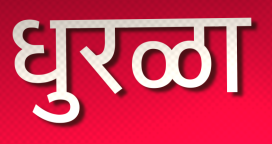
धुरळा